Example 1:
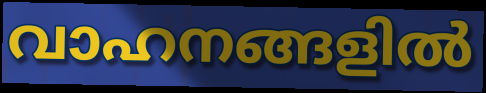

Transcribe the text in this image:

വാഹനങ്ങളിൽ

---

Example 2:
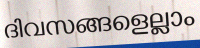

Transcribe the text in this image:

ദിവസങ്ങളെല്ലാം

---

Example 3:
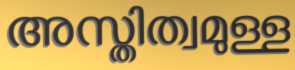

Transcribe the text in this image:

അസ്തിത്വമുള്ള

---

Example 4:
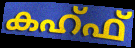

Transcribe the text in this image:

കഹ്ഫ്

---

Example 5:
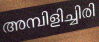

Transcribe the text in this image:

അമ്പിളിച്ചിരി